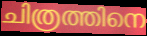
ചിത്രത്തിനെ